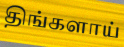
திங்களாய்